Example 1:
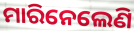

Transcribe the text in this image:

ମାରିନେଲେଣି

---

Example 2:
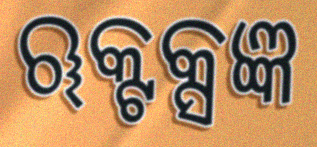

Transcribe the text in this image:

ୠକ୍ଟକ୍ସଜ୍ଞ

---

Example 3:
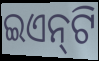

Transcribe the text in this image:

ଇଏନ୍‌ଟି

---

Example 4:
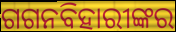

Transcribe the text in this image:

ଗଗନବିହାରୀଙ୍କର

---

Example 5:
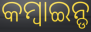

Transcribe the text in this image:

କମ୍ବାଇନ୍ଡ